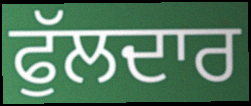
ਫੁੱਲਦਾਰ